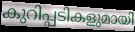
കുറിപ്പടികളുമായി